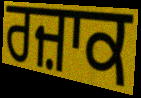
ਰਜ਼ਾਕ